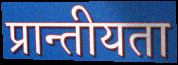
प्रान्तीयता